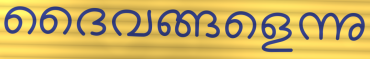
ദൈവങ്ങളെന്നു